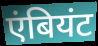
एंबियंट